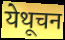
येथूचन